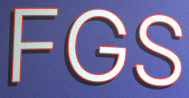
FGS